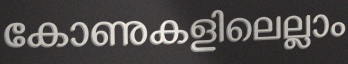
കോണുകളിലെല്ലാം